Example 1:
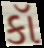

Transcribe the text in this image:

કૉ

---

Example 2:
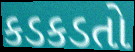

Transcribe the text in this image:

કડકડતો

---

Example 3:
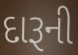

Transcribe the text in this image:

દારૂની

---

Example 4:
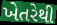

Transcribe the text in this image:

ખેતરેથી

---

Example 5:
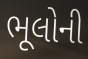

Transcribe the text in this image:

ભૂલોની